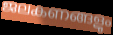
ജലകണങ്ങളും